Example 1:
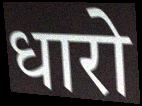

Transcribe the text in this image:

धारो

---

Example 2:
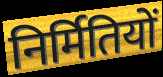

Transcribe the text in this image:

निर्मितियों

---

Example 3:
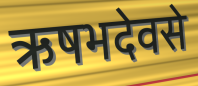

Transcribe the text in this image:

ऋषभदेवसे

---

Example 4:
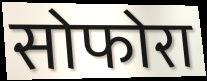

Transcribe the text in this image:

सोफोरा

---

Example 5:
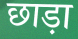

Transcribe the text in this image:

छाड़ा